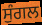
ਸੁੰਗਲ